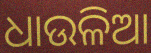
ଧାଉଳିଆ